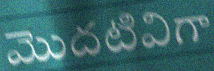
మొదటివిగా